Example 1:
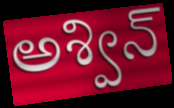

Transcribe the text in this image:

అశ్విన్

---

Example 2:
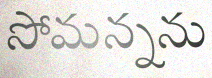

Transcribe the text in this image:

సోమన్నను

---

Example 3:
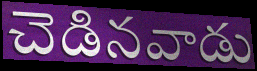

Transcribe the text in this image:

చెడినవాడు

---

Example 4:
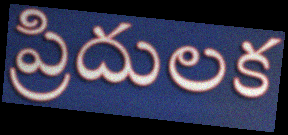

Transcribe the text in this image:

ప్రిదులక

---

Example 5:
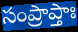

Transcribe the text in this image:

సంప్రాప్తాః